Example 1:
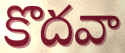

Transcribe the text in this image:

కొదవా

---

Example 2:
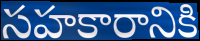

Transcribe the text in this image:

సహకారానికి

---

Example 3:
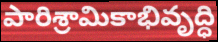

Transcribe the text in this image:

పారిశ్రామికాభివృద్ధి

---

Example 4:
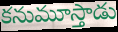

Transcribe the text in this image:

కనుమూస్తాడు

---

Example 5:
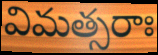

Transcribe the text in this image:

విమత్సరాః